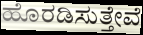
ಹೊರಡಿಸುತ್ತೇವೆ